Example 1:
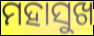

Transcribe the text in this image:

ମହାସୁଖ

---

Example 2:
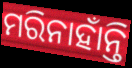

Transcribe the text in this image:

ମରିନାହାଁନ୍ତି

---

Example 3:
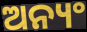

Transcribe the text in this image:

ଅନ୍ୟଂ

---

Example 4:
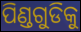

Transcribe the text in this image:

ପିଣ୍ଡଗୁଡିକୁ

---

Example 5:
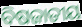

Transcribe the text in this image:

ବିଷଜାତୀୟ